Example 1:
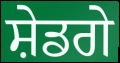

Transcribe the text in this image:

ਸ਼ੇਡਗੇ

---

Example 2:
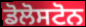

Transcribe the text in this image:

ਡੋਲੋਸਟੋਨ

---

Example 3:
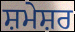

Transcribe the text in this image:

ਸ਼ਮੇਸ਼ਰ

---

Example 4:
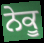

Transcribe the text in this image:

ਨੇਕੂ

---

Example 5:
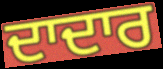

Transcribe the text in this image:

ਦਾਦਾਰ